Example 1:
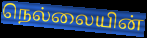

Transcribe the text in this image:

நெல்லையின்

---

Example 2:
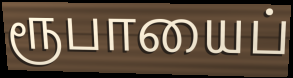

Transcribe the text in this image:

ரூபாயைப்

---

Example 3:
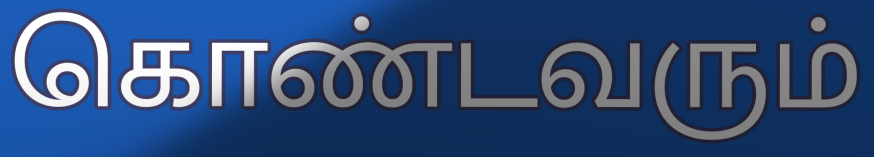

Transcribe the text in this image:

கொண்டவரும்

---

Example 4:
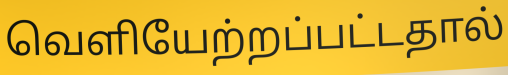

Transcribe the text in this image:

வெளியேற்றப்பட்டதால்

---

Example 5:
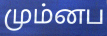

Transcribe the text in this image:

மும்னப